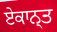
ਏਕਾਨ੍ਤ